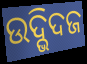
ଉଦ୍ଭିଦଜ